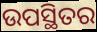
ଉପସ୍ଥିତର